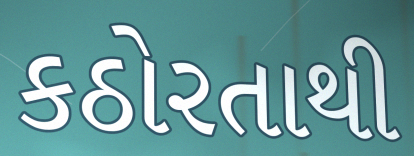
કઠોરતાથી